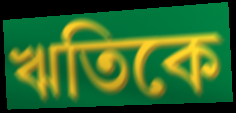
ঋতিকে